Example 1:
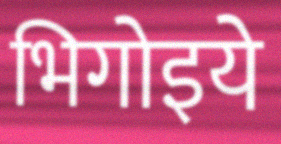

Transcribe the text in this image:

भिगोइये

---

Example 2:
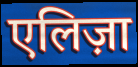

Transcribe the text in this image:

एलिज़ा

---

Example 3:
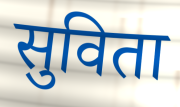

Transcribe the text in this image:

सुविता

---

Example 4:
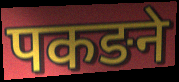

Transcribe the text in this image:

पकङने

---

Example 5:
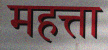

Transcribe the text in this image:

महत्ता